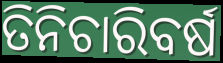
ତିନିଚାରିବର୍ଷ